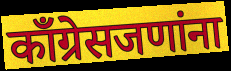
काँग्रेसजणांना